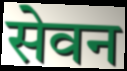
सेवन